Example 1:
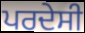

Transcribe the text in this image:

ਪਰਦੇਸੀ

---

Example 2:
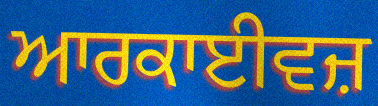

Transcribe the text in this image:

ਆਰਕਾਈਵਜ਼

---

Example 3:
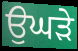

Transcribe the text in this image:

ਉਘੜੇ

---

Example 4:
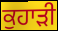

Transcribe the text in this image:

ਕੁਹਾੜੀ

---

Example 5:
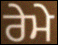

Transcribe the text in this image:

ਰੇਮੇ